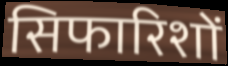
सिफारिशों